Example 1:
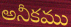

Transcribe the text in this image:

అనీకము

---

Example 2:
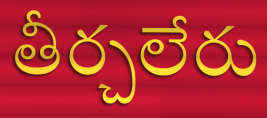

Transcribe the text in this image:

తీర్చలేరు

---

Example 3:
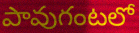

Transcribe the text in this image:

పావుగంటలో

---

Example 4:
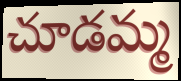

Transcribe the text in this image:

చూడమ్మ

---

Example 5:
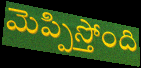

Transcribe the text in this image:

మెప్పిస్తోంది